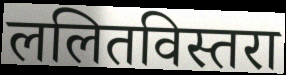
ललितविस्तरा